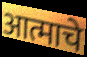
आत्माचे